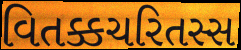
વિતક્કચરિતસ્સ